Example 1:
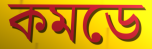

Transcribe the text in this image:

কমডে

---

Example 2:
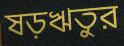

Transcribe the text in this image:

ষড়ঋতুর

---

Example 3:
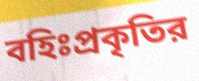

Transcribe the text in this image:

বহিঃপ্রকৃতির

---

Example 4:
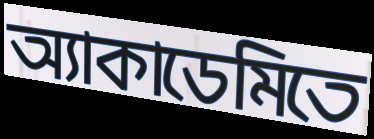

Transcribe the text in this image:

অ্যাকাডেমিতে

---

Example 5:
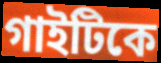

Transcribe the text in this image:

গাইটিকে